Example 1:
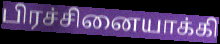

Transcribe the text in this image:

பிரச்சினையாக்கி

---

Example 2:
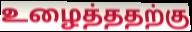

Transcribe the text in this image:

உழைத்ததற்கு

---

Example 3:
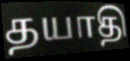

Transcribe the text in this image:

தயாதி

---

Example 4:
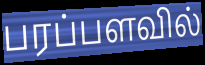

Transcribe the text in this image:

பரப்பளவில்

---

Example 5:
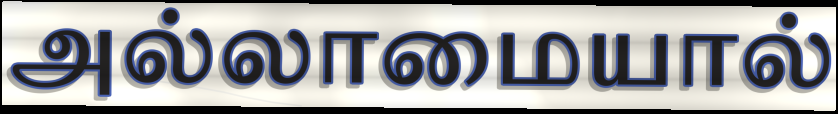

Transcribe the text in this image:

அல்லாமையால்